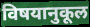
विषयानुकूल